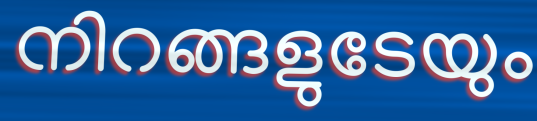
നിറങ്ങളുടേയും